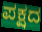
ಪಕ್ಷದ